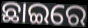
ଛାଇରେ